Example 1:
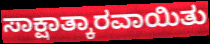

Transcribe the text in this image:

ಸಾಕ್ಷಾತ್ಕಾರವಾಯಿತು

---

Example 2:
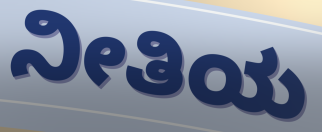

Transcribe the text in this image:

ನೀತಿಯ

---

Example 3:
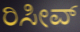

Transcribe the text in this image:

ರಿಸೀವ್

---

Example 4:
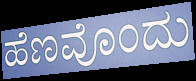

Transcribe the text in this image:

ಹೆಣವೊಂದು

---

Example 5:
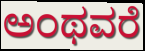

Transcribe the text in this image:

ಅಂಥವರೆ